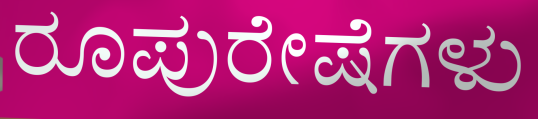
ರೂಪುರೇಷೆಗಳು